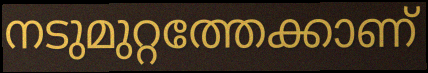
നടുമുറ്റത്തേക്കാണ്